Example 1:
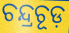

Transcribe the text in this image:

ଚନ୍ଦ୍ରଚୂଡ଼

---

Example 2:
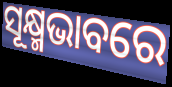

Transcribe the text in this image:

ସୂକ୍ଷ୍ମଭାବରେ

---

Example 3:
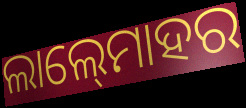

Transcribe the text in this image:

ଲାଲ୍‍ମୋହର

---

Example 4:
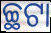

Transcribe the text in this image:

ଚ୍ଛଟା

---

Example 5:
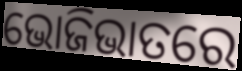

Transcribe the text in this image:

ଭୋଜିଭାତରେ